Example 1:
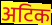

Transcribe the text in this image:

अटिक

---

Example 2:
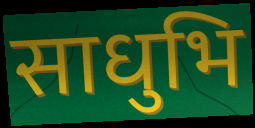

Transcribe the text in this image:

साधुभि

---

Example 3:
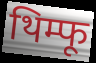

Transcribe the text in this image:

थिम्फू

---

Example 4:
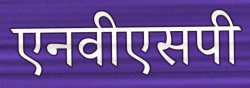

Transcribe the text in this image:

एनवीएसपी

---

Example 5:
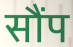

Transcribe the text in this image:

सौंप